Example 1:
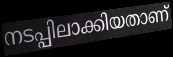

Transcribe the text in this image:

നടപ്പിലാക്കിയതാണ്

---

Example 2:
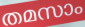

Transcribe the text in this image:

തമസാം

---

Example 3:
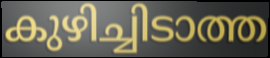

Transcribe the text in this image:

കുഴിച്ചിടാത്ത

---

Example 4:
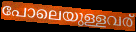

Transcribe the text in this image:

പോലെയുള്ളവര്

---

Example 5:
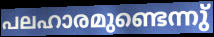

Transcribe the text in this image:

പലഹാരമുണ്ടെന്നു്